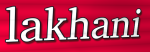
lakhani